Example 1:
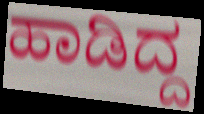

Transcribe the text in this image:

ಹಾಡಿದ್ದ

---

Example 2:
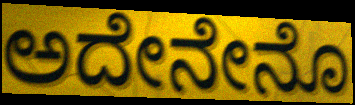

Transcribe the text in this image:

ಅದೇನೇನೊ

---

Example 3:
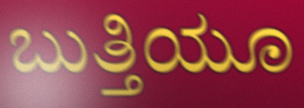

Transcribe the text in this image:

ಬುತ್ತಿಯೂ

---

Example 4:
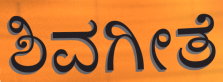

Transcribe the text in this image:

ಶಿವಗೀತೆ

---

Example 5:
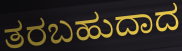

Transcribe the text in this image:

ತರಬಹುದಾದ